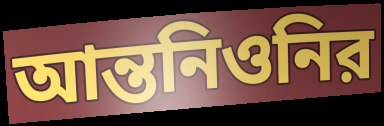
আন্তনিওনির